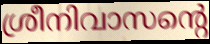
ശ്രീനിവാസന്റെ